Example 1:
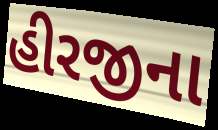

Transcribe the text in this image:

હીરજીના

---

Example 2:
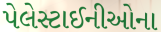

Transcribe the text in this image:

પેલેસ્ટાઈનીઓના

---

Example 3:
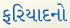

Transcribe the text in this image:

ફરિયાદનો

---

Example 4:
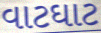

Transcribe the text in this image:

વાટઘાટ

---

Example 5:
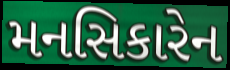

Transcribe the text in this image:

મનસિકારેન